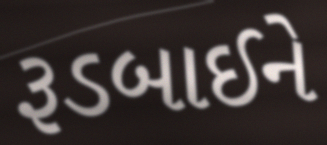
રૂડબાઈને